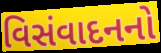
વિસંવાદનનો